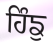
ਹਿੰਙੁ